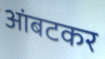
आंबटकर